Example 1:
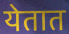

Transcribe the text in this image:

येतात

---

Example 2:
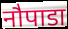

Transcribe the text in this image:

नौपाडा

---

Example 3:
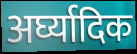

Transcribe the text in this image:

अर्घ्यादिक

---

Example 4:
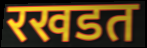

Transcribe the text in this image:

रखडत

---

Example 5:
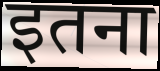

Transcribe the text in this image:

इतना